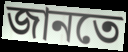
জানতে